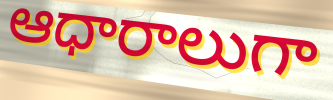
ఆధారాలుగా